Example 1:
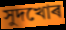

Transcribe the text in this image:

সুদখোৰ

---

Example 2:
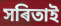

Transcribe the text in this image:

সৰিতাই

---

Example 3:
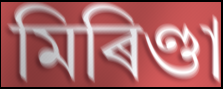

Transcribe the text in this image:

মিৰিণ্ডা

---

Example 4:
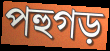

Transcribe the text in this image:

পহুগড়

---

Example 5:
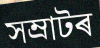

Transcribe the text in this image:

সম্ৰাটৰ